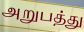
அறுபத்து